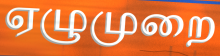
ஏழுமுறை